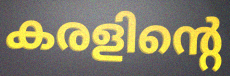
കരളിന്റെ